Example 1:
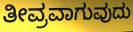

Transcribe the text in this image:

ತೀವ್ರವಾಗುವುದು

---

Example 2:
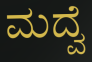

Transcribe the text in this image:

ಮದ್ವೆ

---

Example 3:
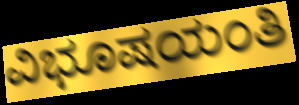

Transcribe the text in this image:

ವಿಭೂಷಯಂತಿ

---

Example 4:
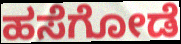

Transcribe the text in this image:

ಹಸೆಗೋಡೆ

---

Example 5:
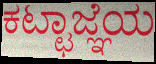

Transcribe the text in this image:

ಕಟ್ಟಾಜ್ಞೆಯ